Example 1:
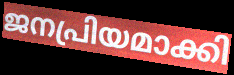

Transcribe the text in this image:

ജനപ്രിയമാക്കി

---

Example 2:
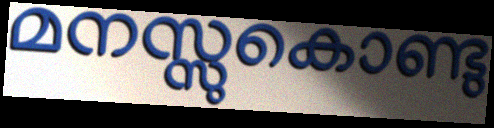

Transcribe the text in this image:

മനസ്സുകൊണ്ടു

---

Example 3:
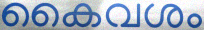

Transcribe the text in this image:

കൈവശം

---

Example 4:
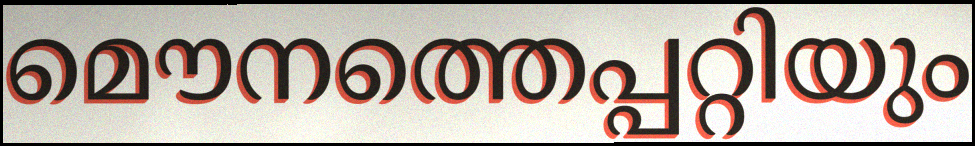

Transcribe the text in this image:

മൌനത്തെപ്പറ്റിയും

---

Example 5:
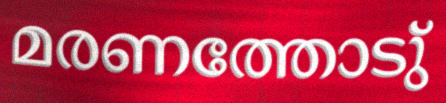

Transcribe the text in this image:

മരണത്തോടു്